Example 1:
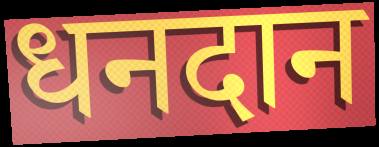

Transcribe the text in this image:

धनदान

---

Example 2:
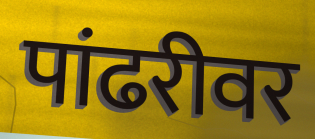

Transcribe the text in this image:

पांढरीवर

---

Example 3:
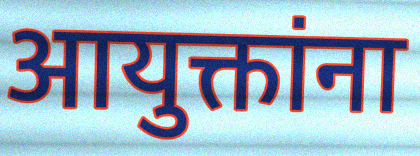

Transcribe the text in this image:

आयुक्तांना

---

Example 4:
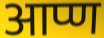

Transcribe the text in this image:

आप्ण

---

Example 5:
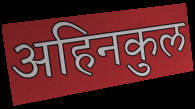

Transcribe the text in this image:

अहिनकुल